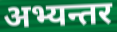
अभ्यन्तर